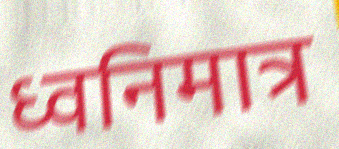
ध्वनिमात्र